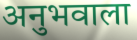
अनुभवाला